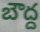
బౌద్ద